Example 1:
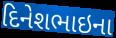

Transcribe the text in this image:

દિનેશભાઇના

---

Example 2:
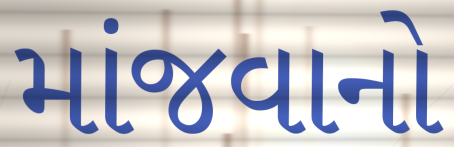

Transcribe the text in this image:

માંજવાનો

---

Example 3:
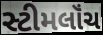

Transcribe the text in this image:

સ્ટીમલૉંચ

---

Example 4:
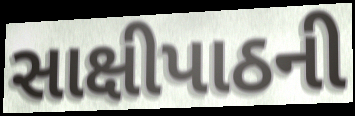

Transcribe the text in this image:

સાક્ષીપાઠની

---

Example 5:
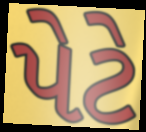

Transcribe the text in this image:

પેટે